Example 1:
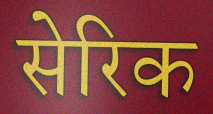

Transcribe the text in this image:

सेरिक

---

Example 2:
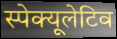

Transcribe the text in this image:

स्पेक्यूलेटिव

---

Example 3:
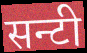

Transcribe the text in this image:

सन्टी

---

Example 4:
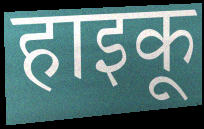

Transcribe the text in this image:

हाइकू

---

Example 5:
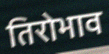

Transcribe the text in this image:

तिरोभाव